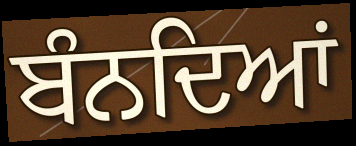
ਬੰਨਦਿਆਂ